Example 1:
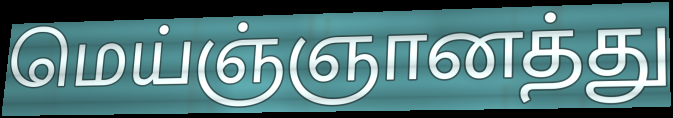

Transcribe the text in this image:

மெய்ஞ்ஞானத்து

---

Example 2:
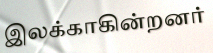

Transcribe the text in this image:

இலக்காகின்றனர்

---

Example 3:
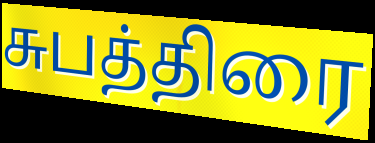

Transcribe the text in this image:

சுபத்திரை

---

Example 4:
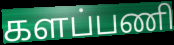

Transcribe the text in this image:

களப்பணி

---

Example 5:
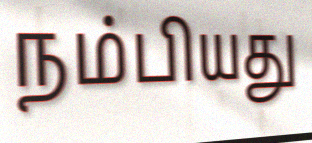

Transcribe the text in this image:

நம்பியது